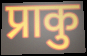
प्राकु